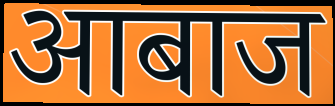
आबाज